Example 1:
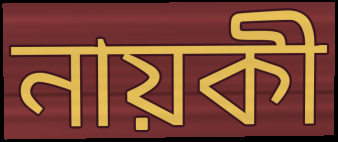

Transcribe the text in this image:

নায়কী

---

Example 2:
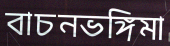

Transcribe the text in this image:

বাচনভঙ্গিমা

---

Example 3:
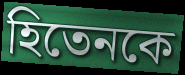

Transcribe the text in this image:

হিতেনকে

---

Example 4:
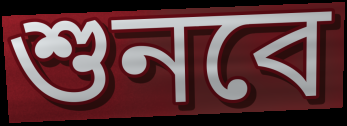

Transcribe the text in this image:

শুনবে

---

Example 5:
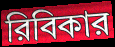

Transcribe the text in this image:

রিবিকার